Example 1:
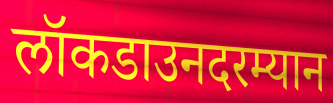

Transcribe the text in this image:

लॉकडाउनदरम्यान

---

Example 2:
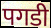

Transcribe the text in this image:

पगडी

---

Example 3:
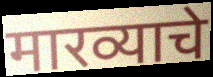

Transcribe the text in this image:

मारव्याचे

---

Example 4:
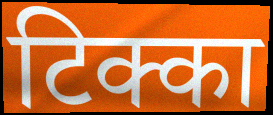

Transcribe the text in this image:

टिक्का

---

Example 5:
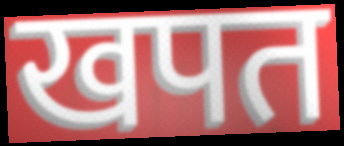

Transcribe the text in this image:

खपत